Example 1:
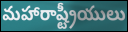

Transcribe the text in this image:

మహారాష్ట్రీయులు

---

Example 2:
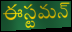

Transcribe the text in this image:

ఈస్టమన్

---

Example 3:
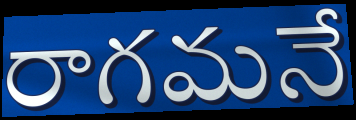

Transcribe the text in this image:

రాగమనే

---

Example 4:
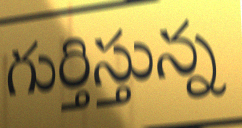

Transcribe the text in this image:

గుర్తిస్తున్న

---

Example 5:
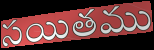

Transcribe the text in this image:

సయితము